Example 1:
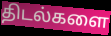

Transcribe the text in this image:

திடல்களை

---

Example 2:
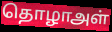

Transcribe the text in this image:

தொழாஅள்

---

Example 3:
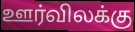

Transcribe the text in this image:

ஊர்விலக்கு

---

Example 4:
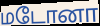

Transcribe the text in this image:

மடோனா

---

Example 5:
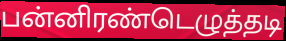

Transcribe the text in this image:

பன்னிரண்டெழுத்தடி